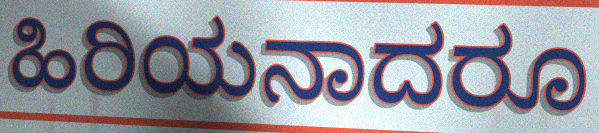
ಹಿರಿಯನಾದರೂ